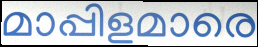
മാപ്പിളമാരെ